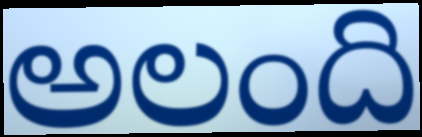
అలంది